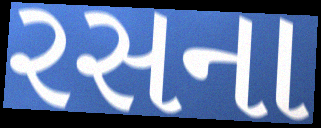
રસના